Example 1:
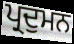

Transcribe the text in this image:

ਪ੍ਰਦੁਮਨ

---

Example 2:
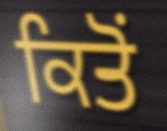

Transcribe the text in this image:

ਕਿਤੋਂ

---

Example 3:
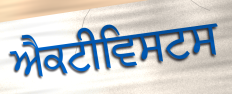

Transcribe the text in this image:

ਐਕਟੀਵਿਸਟਸ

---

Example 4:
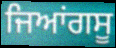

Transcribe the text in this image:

ਜਿਆਂਗਸੂ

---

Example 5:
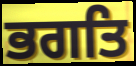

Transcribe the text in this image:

ਭਗਤਿ